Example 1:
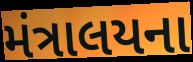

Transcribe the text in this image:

મંત્રાલયના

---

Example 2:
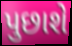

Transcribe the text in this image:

પુછાશે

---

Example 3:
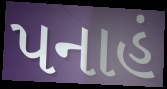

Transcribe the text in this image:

પનાહં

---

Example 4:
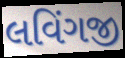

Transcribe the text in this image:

લવિંગજી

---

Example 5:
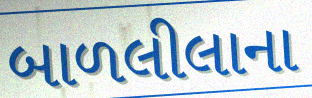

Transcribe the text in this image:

બાળલીલાના